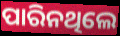
ପାରିନଥିଲେ